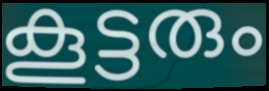
കൂട്ടരും